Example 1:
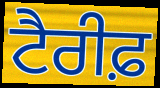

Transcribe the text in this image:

ਟੈਰੀਫ਼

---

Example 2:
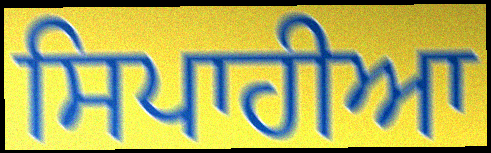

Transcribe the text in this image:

ਸਿਪਾਹੀਆ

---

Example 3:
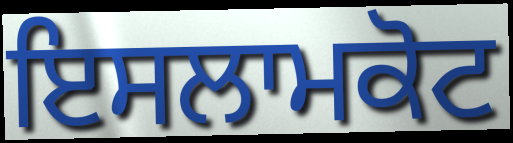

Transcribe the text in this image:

ਇਸਲਾਮਕੋਟ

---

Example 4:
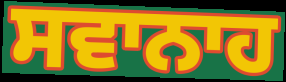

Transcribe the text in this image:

ਸਵਾਨਾਹ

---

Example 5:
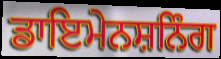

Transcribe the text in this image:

ਡਾਇਮੇਨਸ਼ਨਿੰਗ